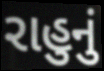
રાહુનું